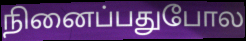
நினைப்பதுபோல